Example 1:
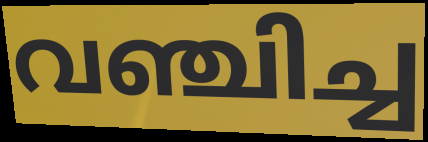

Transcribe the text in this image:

വഞ്ചിച്ച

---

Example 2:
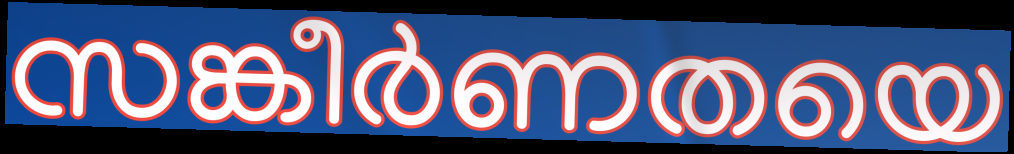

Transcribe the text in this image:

സങ്കീർണതയെ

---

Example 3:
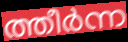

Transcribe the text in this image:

ത്തീർന്ന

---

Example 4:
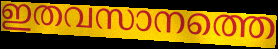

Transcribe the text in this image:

ഇതവസാനത്തെ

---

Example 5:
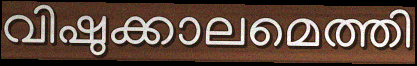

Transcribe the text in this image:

വിഷുക്കാലമെത്തി